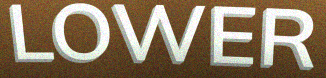
LOWER